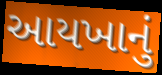
આયખાનું